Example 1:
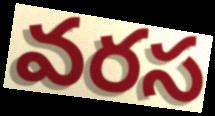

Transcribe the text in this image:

వరస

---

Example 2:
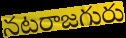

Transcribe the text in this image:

నటరాజగురు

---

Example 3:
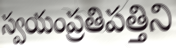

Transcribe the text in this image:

స్వయంప్రతిపత్తిని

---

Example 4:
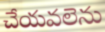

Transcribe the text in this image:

చేయవలెను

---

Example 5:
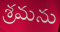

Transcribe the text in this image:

శ్రమను